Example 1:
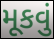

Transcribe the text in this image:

મૂકવું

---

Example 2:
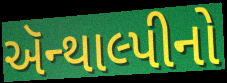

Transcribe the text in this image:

ઍન્થાલ્પીનો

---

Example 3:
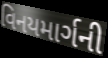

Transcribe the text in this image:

વિનયમાર્ગની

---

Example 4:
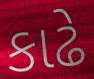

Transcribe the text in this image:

કાઢે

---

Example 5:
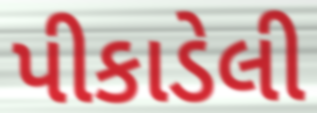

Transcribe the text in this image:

પીકાડેલી